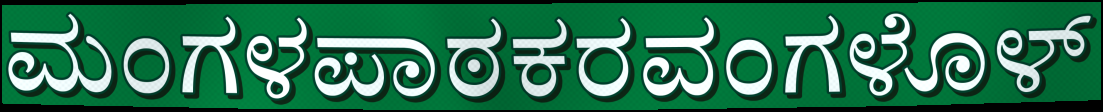
ಮಂಗಳಪಾಠಕರವಂಗಳೊಳ್